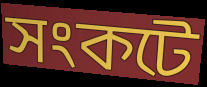
সংকটে